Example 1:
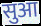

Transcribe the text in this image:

सुआ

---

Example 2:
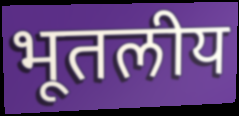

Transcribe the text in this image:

भूतलीय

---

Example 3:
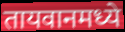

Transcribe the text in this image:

तायवानमध्ये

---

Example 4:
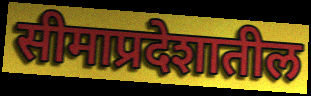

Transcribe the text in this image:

सीमाप्रदेशातील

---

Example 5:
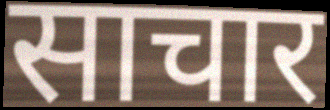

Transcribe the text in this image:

साचार